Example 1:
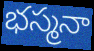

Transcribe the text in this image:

భస్మనా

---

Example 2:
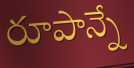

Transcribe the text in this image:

రూపాన్నే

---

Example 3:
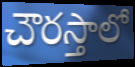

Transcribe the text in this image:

చౌరస్తాలో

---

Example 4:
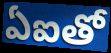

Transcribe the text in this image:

ఏఐతో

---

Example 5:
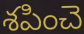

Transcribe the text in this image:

శపించె